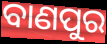
ବାଣପୁର